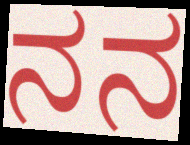
ನನ